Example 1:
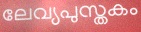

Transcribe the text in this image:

ലേവ്യപുസ്തകം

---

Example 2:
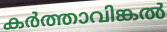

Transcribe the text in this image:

കർത്താവിങ്കൽ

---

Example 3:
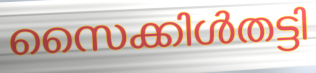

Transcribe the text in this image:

സൈക്കിൾതട്ടി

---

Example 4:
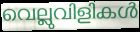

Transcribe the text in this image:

വെല്ലുവിളികൾ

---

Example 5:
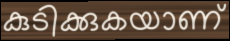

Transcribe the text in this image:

കുടിക്കുകയാണ്